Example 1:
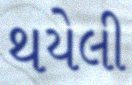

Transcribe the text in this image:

થયેલી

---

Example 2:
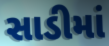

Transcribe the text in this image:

સાડીમાં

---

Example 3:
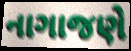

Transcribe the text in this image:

નાગાજણે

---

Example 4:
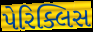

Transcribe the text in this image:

પેરિક્લિસ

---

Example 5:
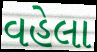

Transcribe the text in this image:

વહેલા